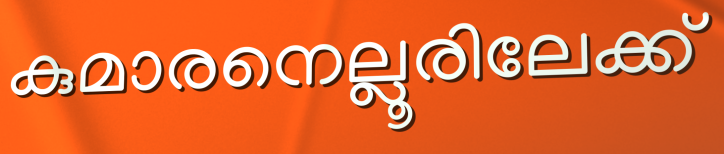
കുമാരനെല്ലൂരിലേക്ക്